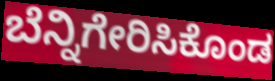
ಬೆನ್ನಿಗೇರಿಸಿಕೊಂಡ